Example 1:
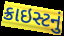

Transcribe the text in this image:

ક્રાઇસ્ટનું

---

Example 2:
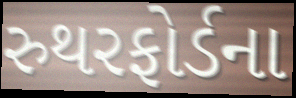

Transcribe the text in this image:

રુથરફોર્ડના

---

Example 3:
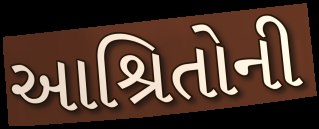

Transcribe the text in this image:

આશ્રિતોની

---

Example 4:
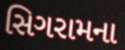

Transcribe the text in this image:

સિગરામના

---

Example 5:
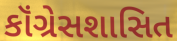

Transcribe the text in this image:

કૉંગ્રેસશાસિત